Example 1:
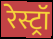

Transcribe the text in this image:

रेस्ट्रॉ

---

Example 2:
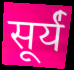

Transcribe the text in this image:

सूर्य॑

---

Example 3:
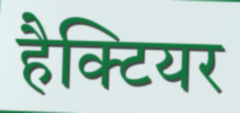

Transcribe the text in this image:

हैक्टियर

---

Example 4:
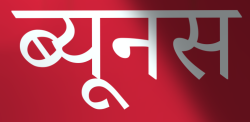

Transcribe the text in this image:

ब्यूनस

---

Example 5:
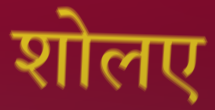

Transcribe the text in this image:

शोलए